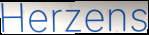
Herzens